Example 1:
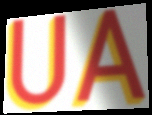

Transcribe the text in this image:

UA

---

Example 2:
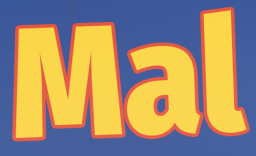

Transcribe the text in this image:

Mal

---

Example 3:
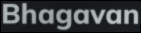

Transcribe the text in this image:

Bhagavan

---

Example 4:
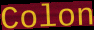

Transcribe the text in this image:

Colon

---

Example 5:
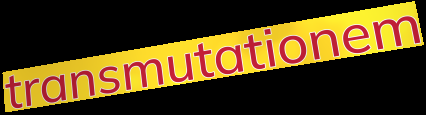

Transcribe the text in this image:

transmutationem